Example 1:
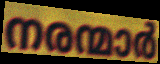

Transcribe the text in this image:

നരന്മാർ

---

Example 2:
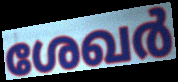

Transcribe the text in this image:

ശേഖർ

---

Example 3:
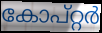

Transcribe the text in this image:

കോപ്റ്റർ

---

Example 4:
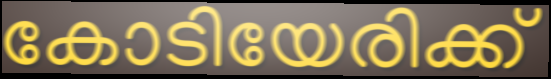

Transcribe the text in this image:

കോടിയേരിക്ക്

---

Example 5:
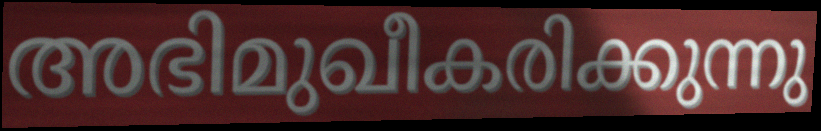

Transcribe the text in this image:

അഭിമുഖീകരിക്കുന്നു